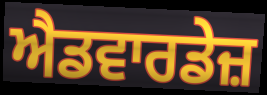
ਐਡਵਾਰਡੇਜ਼